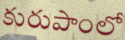
కురుపాంలో